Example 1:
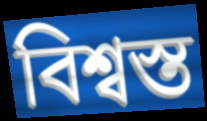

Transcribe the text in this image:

বিশ্বস্ত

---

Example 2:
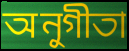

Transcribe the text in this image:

অনুগীতা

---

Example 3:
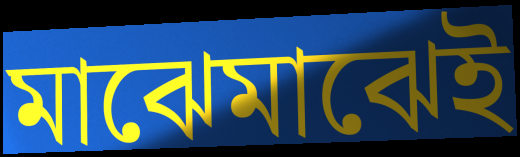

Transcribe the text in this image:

মাঝেমাঝেই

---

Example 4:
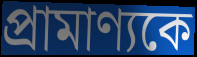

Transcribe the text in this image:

প্রামাণ্যকে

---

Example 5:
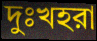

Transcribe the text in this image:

দুঃখহরা